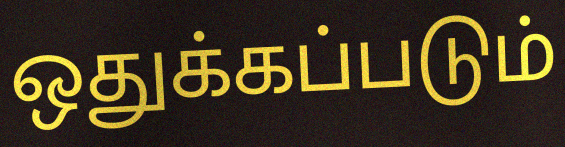
ஒதுக்கப்படும்